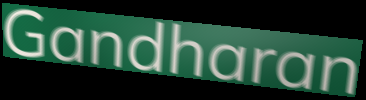
Gandharan